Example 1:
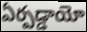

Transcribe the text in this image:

ఏర్పడ్డాయో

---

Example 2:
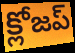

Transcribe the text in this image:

క్లోజప్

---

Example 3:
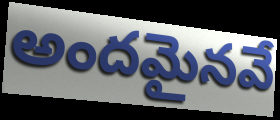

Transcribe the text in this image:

అందమైనవే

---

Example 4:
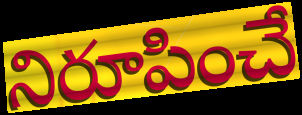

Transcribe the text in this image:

నిరూపించే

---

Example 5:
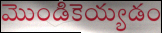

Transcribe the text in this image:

మొండికెయ్యడం